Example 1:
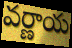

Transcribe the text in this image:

వర్ణాయ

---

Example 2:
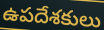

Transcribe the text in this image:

ఉపదేశకులు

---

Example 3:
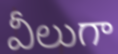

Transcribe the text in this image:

వీలుగా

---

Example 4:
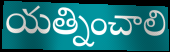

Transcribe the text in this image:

యత్నించాలి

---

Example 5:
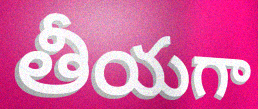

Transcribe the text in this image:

తీయగా